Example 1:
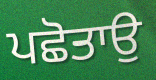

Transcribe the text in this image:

ਪਛੋਤਾਉ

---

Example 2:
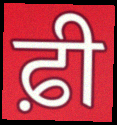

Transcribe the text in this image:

ਫ਼ੀ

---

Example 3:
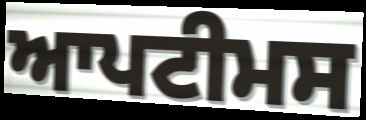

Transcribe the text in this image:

ਆਪਟੀਮਸ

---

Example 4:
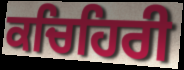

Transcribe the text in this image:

ਕਚਿਹਿਰੀ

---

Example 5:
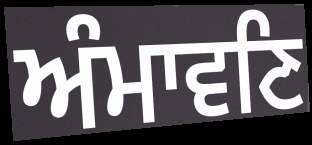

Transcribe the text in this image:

ਅੰਮਾਵਣਿ